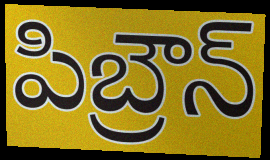
పిబ్రౌన్